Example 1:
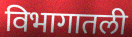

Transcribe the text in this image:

विभागातली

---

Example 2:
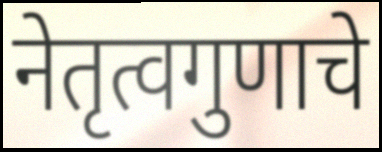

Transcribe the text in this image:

नेतृत्वगुणाचे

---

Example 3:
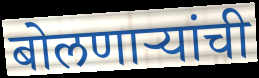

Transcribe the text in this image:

बोलणाऱ्यांची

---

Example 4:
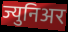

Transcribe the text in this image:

ज्युनिअर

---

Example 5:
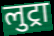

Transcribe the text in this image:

लुट्रा